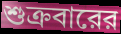
শুক্রবারের